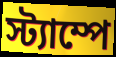
স্ট্যাম্পে